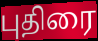
புதிரை